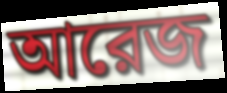
আরেজ